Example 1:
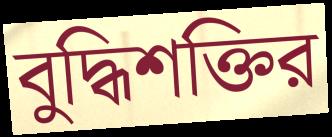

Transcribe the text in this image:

বুদ্ধিশক্তির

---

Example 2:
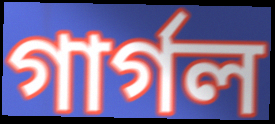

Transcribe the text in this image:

গার্গল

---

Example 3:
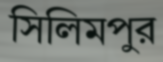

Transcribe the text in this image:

সিলিমপুর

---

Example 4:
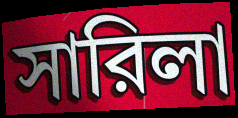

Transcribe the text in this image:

সারিলা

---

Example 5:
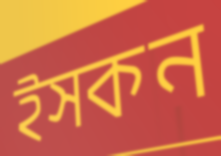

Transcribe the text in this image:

ইসকন